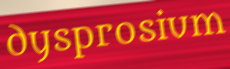
dysprosium